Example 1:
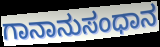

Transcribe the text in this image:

ಗಾನಾನುಸಂಧಾನ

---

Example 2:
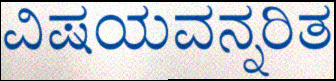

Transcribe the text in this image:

ವಿಷಯವನ್ನರಿತ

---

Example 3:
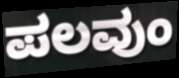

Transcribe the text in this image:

ಪಲವುಂ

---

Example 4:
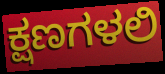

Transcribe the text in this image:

ಕ್ಷಣಗಳಲಿ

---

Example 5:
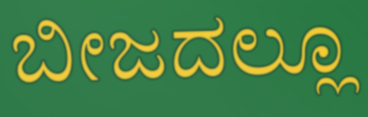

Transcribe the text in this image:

ಬೀಜದಲ್ಲೂ